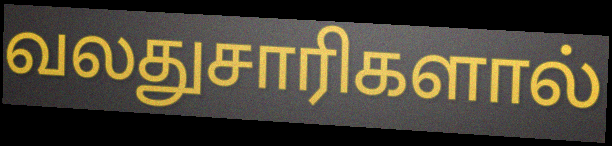
வலதுசாரிகளால்